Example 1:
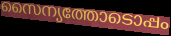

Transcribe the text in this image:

സൈന്യത്തോടൊപ്പം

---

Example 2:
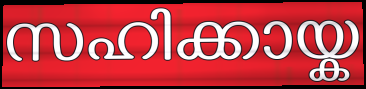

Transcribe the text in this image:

സഹിക്കായ്ക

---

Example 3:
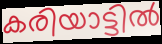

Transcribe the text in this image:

കരിയാട്ടിൽ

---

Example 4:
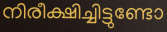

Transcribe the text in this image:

നിരീക്ഷിച്ചിട്ടുണ്ടോ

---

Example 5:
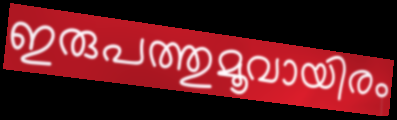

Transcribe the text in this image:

ഇരുപത്തുമൂവായിരം